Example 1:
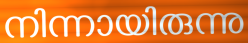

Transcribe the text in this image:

നിന്നായിരുന്നു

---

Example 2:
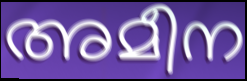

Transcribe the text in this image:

അമീന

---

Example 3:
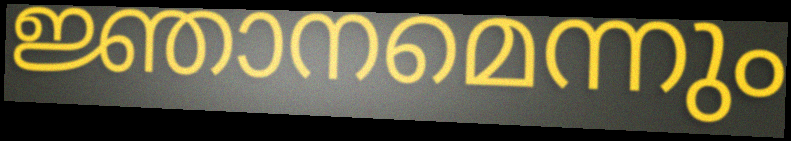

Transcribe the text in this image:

ജ്ഞാനമെന്നും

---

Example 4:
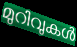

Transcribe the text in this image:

മുറിവുകൾ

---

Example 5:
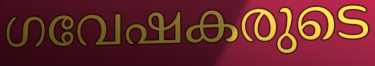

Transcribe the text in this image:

ഗവേഷകരുടെ